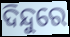
ଦିନ୍ଦୁରେ